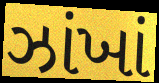
ઝાંખાં